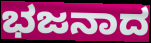
ಭಜನಾದ